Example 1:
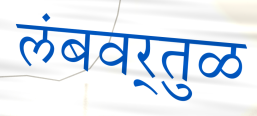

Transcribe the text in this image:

लंबवर्तुळ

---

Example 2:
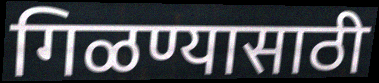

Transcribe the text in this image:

गिळण्यासाठी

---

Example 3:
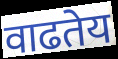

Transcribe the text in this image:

वाढतेय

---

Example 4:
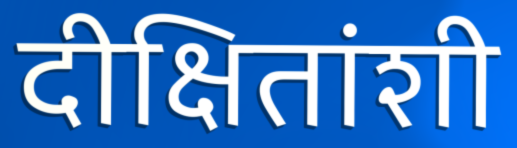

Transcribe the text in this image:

दीक्षितांशी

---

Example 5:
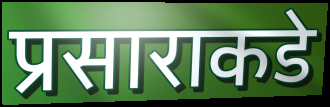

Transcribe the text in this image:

प्रसाराकडे